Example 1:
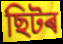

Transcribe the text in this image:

ছিটৰ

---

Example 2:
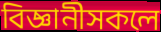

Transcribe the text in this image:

বিজ্ঞানীসকলে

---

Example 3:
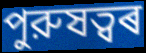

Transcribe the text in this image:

পুৰুষত্বৰ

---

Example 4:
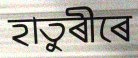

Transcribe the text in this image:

হাতুৰীৰে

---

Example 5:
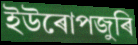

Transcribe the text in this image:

ইউৰোপজুৰি